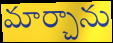
మార్చాను